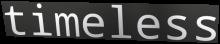
timeless